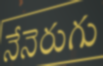
నేనెరుగు